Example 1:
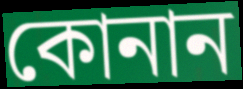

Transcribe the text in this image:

কোনান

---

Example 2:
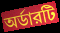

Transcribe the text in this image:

অর্ডারটি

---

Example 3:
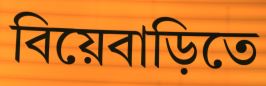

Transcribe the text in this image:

বিয়েবাড়িতে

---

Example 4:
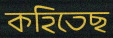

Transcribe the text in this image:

কহিতেছ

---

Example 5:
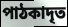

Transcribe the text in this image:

পাঠকাদৃত